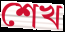
শেখ